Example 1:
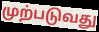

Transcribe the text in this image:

முற்படுவது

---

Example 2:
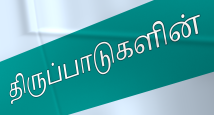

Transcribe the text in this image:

திருப்பாடுகளின்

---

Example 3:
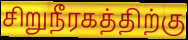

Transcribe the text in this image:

சிறுநீரகத்திற்கு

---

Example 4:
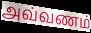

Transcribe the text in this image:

அவ்வணம்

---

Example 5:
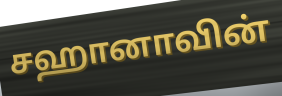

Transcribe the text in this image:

சஹானாவின்